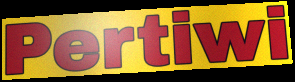
Pertiwi